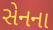
સેનના